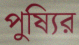
পুষ্যির